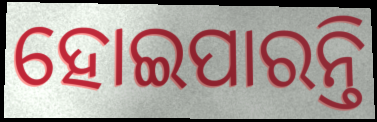
ହୋଇପାରନ୍ତି